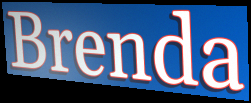
Brenda